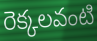
రెక్కలవంటి